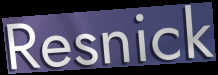
Resnick